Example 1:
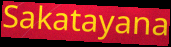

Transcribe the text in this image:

Sakatayana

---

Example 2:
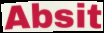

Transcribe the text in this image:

Absit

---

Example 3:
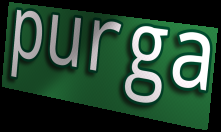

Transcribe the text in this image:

purga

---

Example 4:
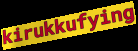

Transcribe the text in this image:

kirukkufying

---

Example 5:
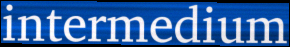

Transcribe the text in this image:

intermedium